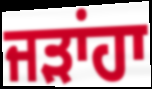
ਜੜਾਂਹਾ